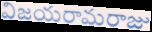
విజయరామరాజు